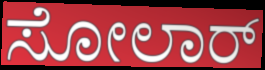
ಸೋಲಾರ್